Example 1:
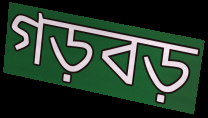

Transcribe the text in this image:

গড়বড়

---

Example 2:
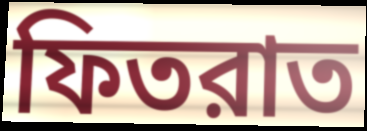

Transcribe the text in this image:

ফিতরাত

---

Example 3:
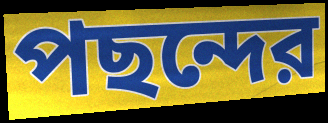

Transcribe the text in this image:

পছন্দের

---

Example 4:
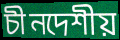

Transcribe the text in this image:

চীনদেশীয়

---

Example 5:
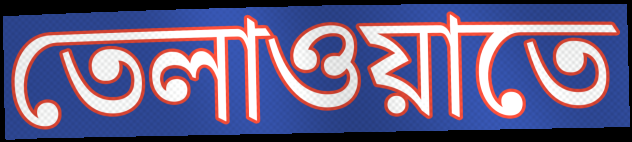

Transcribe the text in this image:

তেলাওয়াতে